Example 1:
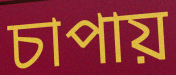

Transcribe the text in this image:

চাপায়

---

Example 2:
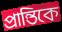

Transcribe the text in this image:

প্রান্তিকে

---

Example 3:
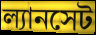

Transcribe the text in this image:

ল্যানসেট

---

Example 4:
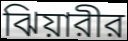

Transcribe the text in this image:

ঝিয়ারীর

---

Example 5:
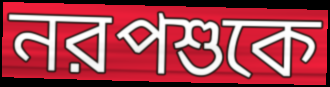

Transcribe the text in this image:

নরপশুকে